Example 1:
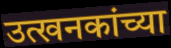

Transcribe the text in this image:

उत्खनकांच्या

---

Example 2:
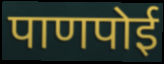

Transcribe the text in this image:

पाणपोई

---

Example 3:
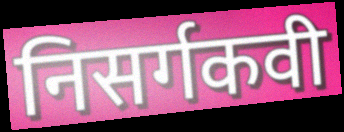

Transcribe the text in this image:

निसर्गकवी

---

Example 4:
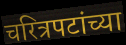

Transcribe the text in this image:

चरित्रपटांच्या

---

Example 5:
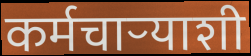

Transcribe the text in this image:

कर्मचाऱ्याशी